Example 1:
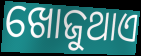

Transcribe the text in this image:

ଖୋଜୁଥାଏ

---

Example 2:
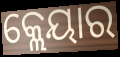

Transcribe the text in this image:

କ୍ଲେୟାର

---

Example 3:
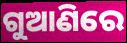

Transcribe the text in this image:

ଗୁଆଣିରେ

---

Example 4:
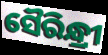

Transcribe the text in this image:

ସୈରିନ୍ଧ୍ରୀ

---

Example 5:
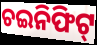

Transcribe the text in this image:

ଚଇନିଫିଟ୍